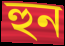
হুন